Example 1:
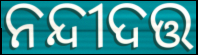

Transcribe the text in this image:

ନନ୍ଦୀଦତ୍ତ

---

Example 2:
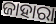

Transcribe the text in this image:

ଜାହାରା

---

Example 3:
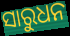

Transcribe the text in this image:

ସାରୁଧନ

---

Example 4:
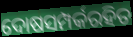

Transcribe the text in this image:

ଦୋଷସମ୍ପର୍କରହିତ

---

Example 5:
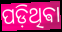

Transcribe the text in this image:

ପଡ଼ିଥିଵା